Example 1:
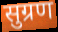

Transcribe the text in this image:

सुग्रण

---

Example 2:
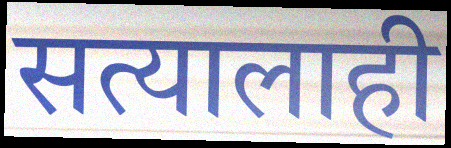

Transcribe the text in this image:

सत्यालाही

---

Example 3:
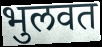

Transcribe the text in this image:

भुलवत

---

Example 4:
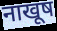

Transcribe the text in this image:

नाखूष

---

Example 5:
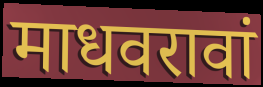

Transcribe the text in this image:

माधवरावां